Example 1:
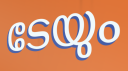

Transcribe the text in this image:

ടേയും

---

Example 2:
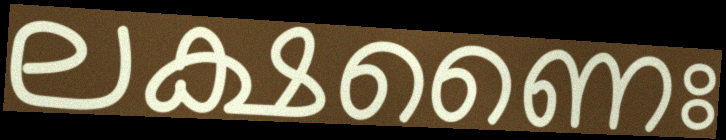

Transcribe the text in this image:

ലക്ഷണൈഃ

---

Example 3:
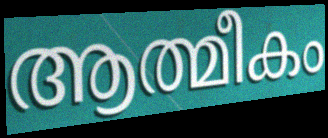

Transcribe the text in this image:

ആത്മീകം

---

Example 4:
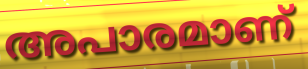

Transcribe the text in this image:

അപാരമാണ്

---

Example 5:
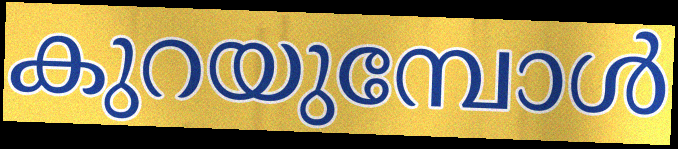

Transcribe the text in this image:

കുറയുമ്പോൾ